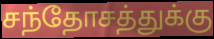
சந்தோசத்துக்கு